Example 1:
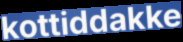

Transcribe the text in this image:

kottiddakke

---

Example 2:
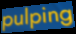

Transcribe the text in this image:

pulping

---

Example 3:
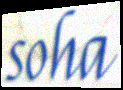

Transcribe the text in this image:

soha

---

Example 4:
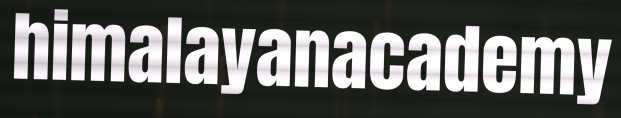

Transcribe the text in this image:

himalayanacademy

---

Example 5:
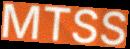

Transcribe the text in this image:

MTSS